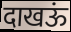
दाखऊं